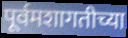
पूर्वमशागतीच्या